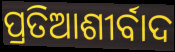
ପ୍ରତିଆଶୀର୍ବାଦ